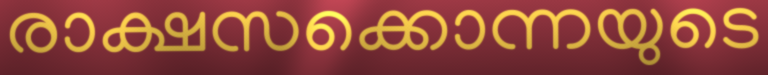
രാക്ഷസക്കൊന്നയുടെ